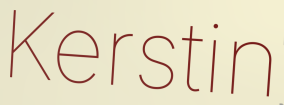
Kerstin